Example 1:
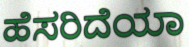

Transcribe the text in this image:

ಹೆಸರಿದೆಯಾ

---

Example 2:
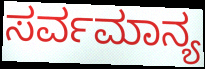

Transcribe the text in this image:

ಸರ್ವಮಾನ್ಯ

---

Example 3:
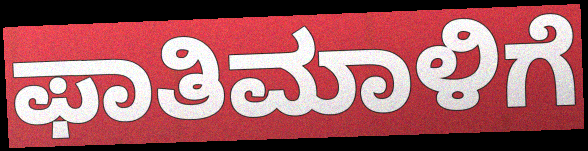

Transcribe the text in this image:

ಫಾತಿಮಾಳಿಗೆ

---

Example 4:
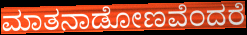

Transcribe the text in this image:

ಮಾತನಾಡೋಣವೆಂದರೆ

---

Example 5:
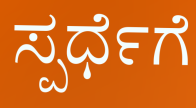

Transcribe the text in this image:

ಸ್ಪರ್ಧೆಗೆ